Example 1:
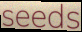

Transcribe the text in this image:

seeds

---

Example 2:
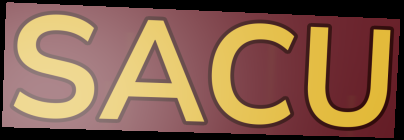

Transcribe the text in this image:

SACU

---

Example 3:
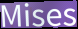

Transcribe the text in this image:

Mises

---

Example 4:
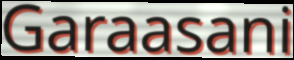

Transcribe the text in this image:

Garaasani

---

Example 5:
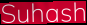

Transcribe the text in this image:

Suhash